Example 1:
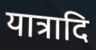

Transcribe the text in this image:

यात्रादि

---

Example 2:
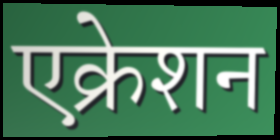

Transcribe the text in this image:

एक्रेशन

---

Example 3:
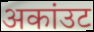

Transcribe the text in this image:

अकांउट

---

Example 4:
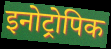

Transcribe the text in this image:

इनोट्रोपिक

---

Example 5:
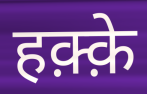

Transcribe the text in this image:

हक़्क़े